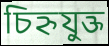
চিহ্নযুক্ত